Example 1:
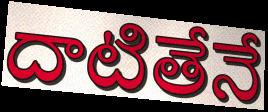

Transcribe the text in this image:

దాటితేనే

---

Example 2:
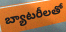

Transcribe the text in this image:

బ్యాటరీలతో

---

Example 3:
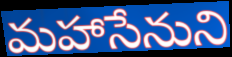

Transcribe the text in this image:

మహాసేనుని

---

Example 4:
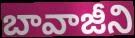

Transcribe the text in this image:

బావాజీని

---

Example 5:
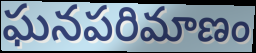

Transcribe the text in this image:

ఘనపరిమాణం